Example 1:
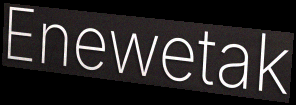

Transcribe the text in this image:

Enewetak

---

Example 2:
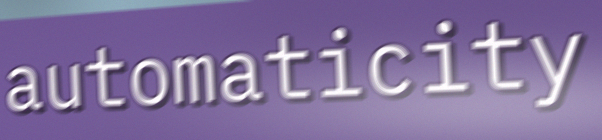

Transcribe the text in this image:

automaticity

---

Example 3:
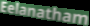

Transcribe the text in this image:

Eelanatham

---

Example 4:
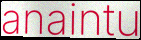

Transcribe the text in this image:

anaintu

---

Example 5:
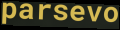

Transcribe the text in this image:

parsevo